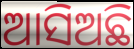
ଆସିଅଛି